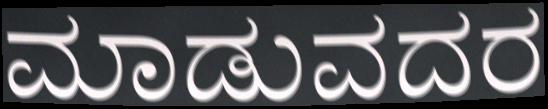
ಮಾಡುವದರ